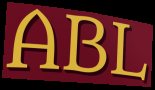
ABL